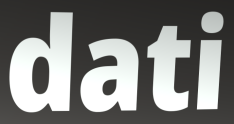
dati